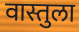
वास्तुला